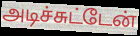
அடிச்சுட்டேன்